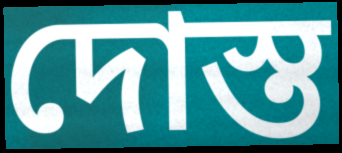
দোস্ত